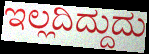
ಇಲ್ಲದಿದ್ದುದು